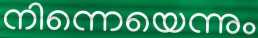
നിന്നെയെന്നും